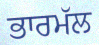
ਭਾਰਮੱਲ